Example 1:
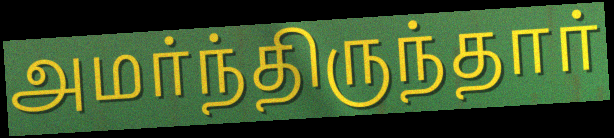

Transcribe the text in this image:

அமர்ந்திருந்தார்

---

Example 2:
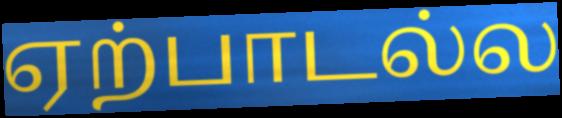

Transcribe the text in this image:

ஏற்பாடல்ல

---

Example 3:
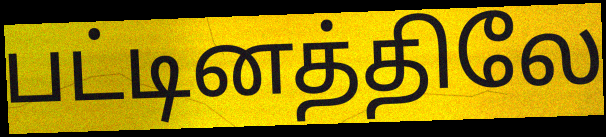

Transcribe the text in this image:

பட்டினத்திலே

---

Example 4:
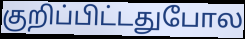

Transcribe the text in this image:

குறிப்பிட்டதுபோல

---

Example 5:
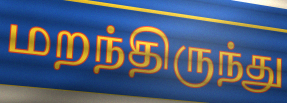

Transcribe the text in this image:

மறந்திருந்து